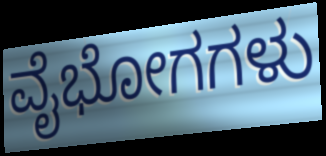
ವೈಭೋಗಗಳು